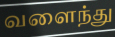
வளைந்து